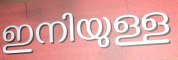
ഇനിയുള്ള